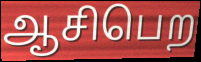
ஆசிபெற